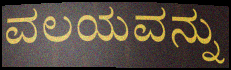
ವಲಯವನ್ನು